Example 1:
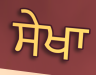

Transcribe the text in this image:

ਸੇਖਾ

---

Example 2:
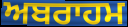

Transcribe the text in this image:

ਅਬਰਾਹਮ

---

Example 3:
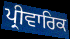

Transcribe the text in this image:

ਪ੍ਰੀਵਾਰਿਕ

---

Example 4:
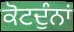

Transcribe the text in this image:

ਕੋਟਦੁੰਨਾਂ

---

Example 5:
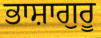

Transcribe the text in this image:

ਭਾਸ਼ਾਗੁਰੂ